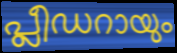
പ്ലീഡറായും